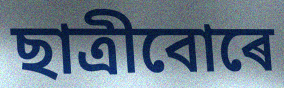
ছাত্ৰীবোৰে